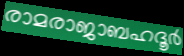
രാമരാജാബഹദൂർ